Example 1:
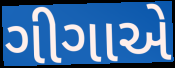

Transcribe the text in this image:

ગીગાએ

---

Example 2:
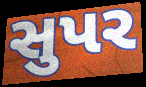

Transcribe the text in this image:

સુપર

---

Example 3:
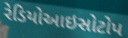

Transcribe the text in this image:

રેડિયોઆઇસોટોપ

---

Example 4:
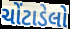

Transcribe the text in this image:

ચોંટાડેલો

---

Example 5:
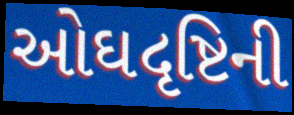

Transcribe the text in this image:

ઓઘદૃષ્ટિની